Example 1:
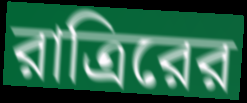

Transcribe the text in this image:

রাত্রিরের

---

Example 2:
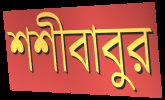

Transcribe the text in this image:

শশীবাবুর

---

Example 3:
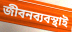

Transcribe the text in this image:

জীবনব্যবস্থাই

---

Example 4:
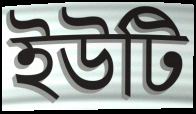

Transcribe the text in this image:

ইউটি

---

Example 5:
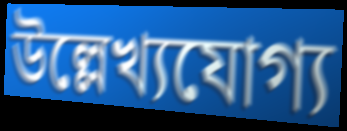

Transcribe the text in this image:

উল্লেখ্যযোগ্য